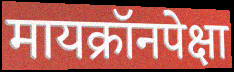
मायक्रॉनपेक्षा